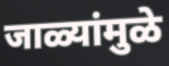
जाळ्यांमुळे